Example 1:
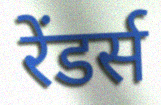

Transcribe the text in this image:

रेंडर्स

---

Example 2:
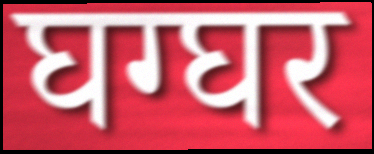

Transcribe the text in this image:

घग्घर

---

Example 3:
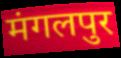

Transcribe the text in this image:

मंगलपुर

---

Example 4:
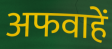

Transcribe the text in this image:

अफवाहें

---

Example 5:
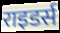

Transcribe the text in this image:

राइडर्स